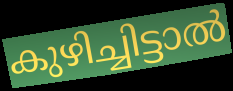
കുഴിച്ചിട്ടാൽ